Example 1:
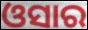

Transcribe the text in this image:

ଓସାର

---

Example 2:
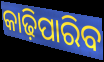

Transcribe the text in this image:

କାଢ଼ିପାରିବ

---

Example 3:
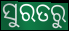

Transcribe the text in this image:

ସୁରତରୁ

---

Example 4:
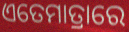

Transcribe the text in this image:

ଏତେମାତ୍ରାରେ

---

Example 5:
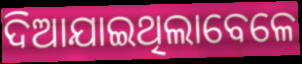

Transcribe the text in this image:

ଦିଆଯାଇଥିଲାବେଳେ